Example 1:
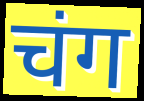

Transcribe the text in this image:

चंग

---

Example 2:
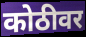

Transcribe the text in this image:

कोठीवर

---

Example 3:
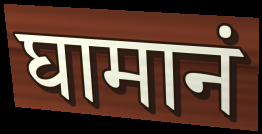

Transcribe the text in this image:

घामानं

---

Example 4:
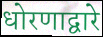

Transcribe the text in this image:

धोरणाद्वारे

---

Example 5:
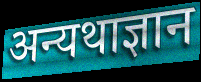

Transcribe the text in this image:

अन्यथाज्ञान